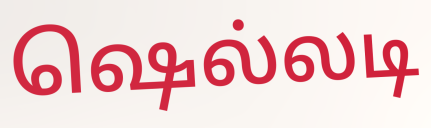
ஷெல்லடி